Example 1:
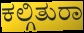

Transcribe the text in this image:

ಕಲ್ಗಿತುರಾ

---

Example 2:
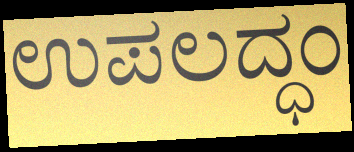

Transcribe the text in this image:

ಉಪಲದ್ಧಂ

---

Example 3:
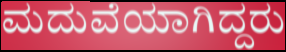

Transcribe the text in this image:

ಮದುವೆಯಾಗಿದ್ದರು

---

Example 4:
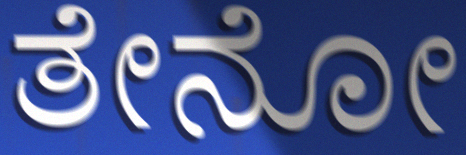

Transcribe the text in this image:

ತೇನೋ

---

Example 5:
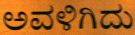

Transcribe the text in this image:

ಅವಳಿಗಿದು